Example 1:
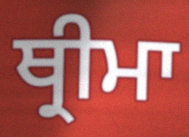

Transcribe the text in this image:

ਥ੍ਰੀਮਾ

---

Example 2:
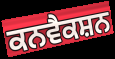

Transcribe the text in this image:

ਕਨਵੈਕਸ਼ਨ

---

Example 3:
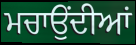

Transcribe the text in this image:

ਮਚਾਉਂਦੀਆਂ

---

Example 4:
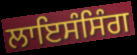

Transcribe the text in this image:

ਲਾਇਸੰਸਿੰਗ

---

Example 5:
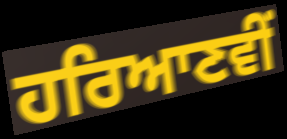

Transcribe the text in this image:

ਹਰਿਆਣਵੀਂ